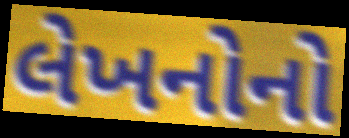
લેખનોનો